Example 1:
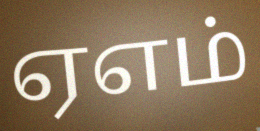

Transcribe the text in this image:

ஏஎம்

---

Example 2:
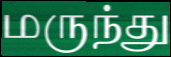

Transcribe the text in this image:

மருந்து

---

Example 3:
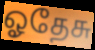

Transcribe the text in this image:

ஓதேசு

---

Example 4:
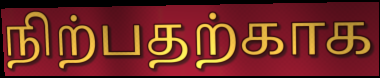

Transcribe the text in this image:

நிற்பதற்காக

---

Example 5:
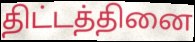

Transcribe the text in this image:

திட்டத்தினை